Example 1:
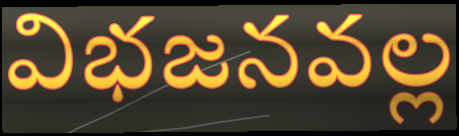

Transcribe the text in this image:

విభజనవల్ల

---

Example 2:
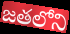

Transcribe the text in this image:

జతలోని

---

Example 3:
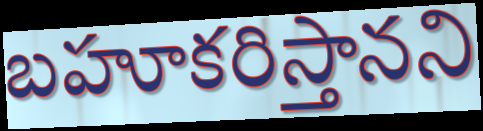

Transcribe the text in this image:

బహూకరిస్తానని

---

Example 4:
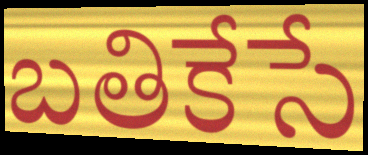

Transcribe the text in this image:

బతికేసే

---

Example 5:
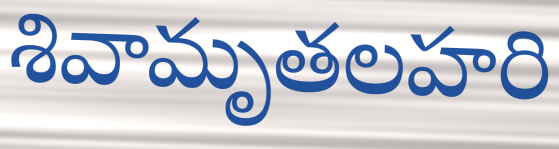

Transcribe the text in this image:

శివామృతలహరి